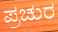
ಪ್ರಚುರ